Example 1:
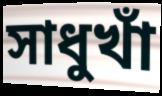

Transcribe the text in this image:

সাধুখাঁ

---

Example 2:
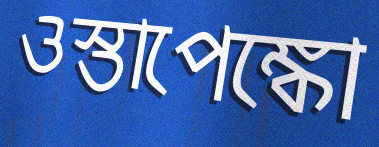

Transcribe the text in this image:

ওস্তাপেঙ্কো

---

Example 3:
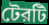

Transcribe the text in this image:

টেরটি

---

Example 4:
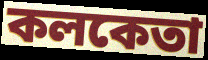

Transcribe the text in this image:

কলকেতা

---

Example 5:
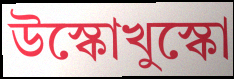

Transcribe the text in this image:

উস্কোখুস্কো